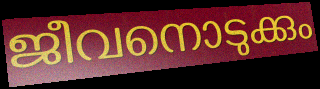
ജീവനൊടുക്കും